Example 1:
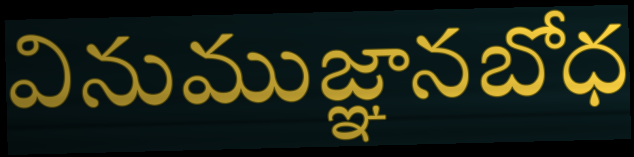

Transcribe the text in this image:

వినుముజ్ఞానబోధ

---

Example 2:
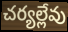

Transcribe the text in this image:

చర్యల్లేవు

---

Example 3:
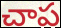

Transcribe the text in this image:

చాప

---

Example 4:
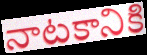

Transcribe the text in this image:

నాటకానికి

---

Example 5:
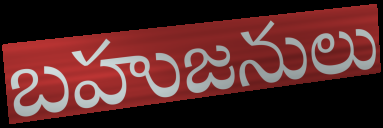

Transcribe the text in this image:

బహుజనులు